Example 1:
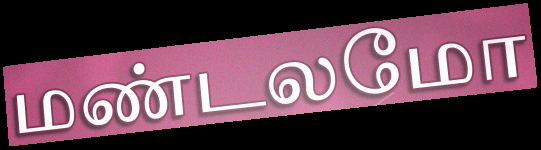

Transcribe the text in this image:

மண்டலமோ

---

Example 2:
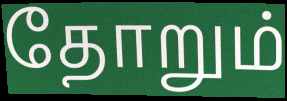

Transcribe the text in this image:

தோறும்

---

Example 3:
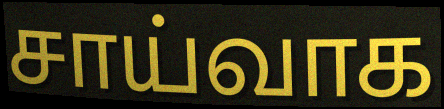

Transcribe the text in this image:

சாய்வாக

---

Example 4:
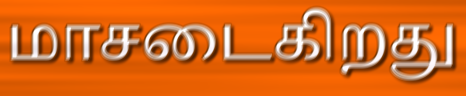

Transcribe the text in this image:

மாசடைகிறது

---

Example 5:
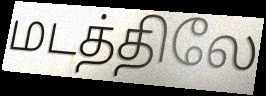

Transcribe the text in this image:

மடத்திலே